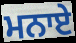
ਮਨਾਏ